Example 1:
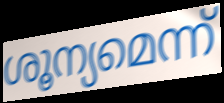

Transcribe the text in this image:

ശൂന്യമെന്ന്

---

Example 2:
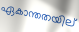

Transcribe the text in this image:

ഏകാന്തതയില്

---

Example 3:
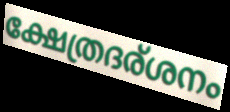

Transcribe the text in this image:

ക്ഷേത്രദര്ശനം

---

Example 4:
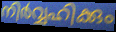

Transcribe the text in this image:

നിർവ്വഹിക്കും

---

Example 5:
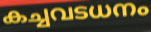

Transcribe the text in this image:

കച്ചവടധനം